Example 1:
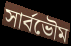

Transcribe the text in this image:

সাৰ্বভৌম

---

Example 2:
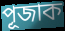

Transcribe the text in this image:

পূজাক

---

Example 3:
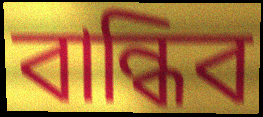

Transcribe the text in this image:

বান্ধিব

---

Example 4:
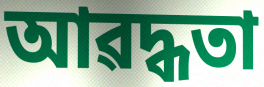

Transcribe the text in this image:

আৱদ্ধতা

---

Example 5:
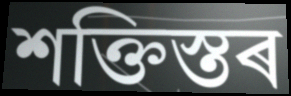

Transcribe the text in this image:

শক্তিস্তৰ